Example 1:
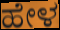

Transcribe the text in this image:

ಹೇಳ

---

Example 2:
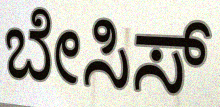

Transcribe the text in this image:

ಬೇಸಿಸ್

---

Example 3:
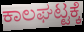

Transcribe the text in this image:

ಕಾಲಘಟ್ಟಕ್ಕೆ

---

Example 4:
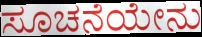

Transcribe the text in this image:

ಸೂಚನೆಯೇನು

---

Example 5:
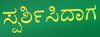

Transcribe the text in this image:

ಸ್ಪರ್ಶಿಸಿದಾಗ